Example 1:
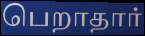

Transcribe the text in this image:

பெறாதார்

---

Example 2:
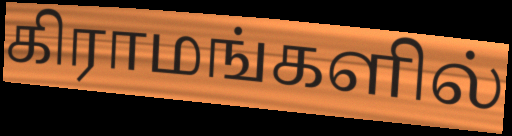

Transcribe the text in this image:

கிராமங்களில்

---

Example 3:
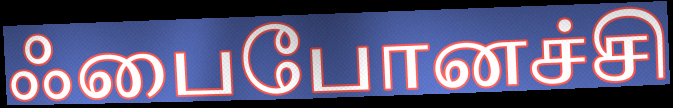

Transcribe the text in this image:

ஃபைபோனச்சி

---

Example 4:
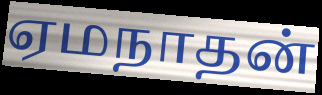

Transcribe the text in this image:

ஏமநாதன்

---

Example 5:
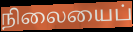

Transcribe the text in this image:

நிலையைப்